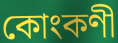
কোংকণী